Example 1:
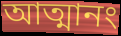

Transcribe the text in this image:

আত্মানং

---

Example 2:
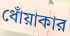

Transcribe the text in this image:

ধোঁয়াকার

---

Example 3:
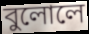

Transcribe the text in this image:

বুলোলে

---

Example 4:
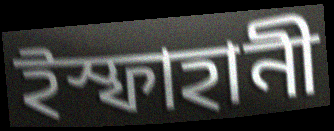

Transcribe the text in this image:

ইস্ফাহানী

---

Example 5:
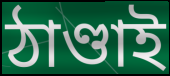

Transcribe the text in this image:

ঠাণ্ডাই